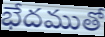
భేదముతో